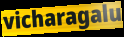
vicharagalu